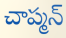
చాప్మన్